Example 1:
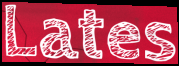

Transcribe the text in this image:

Lates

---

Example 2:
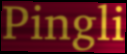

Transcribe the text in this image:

Pingli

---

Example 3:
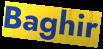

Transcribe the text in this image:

Baghir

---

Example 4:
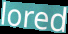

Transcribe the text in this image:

lored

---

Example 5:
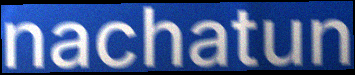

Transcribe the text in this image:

nachatun